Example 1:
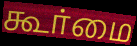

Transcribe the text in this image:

கூர்மை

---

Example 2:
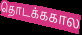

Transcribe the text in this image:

தொடக்ககால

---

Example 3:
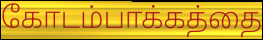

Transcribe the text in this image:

கோடம்பாக்கத்தை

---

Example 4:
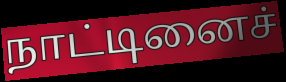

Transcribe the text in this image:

நாட்டினைச்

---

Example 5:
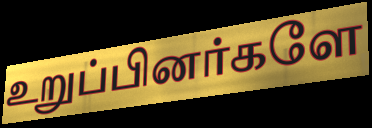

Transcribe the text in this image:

உறுப்பினர்களே